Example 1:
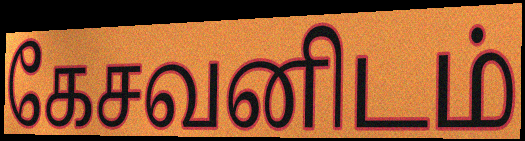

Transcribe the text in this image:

கேசவனிடம்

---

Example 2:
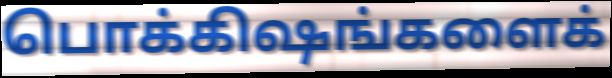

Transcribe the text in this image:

பொக்கிஷங்களைக்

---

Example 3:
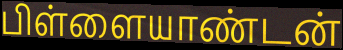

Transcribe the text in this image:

பிள்ளையாண்டன்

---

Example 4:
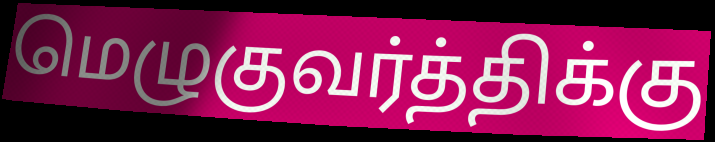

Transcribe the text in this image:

மெழுகுவர்த்திக்கு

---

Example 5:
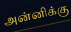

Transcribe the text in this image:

அன்னிக்கு